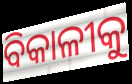
ବିକାଳୀକୁ